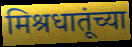
मिश्रधातूंच्या